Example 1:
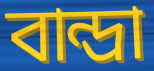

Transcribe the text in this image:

বান্দ্রা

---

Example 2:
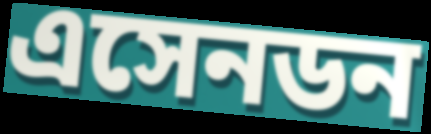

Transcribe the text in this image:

এসেনডন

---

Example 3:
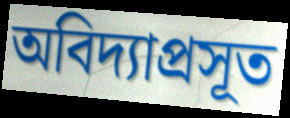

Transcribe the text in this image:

অবিদ্যাপ্রসূত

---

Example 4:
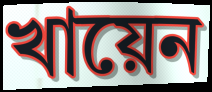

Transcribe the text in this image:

খায়েন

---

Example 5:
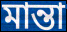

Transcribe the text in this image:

মান্তা